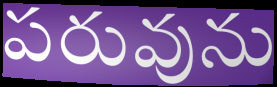
పరువును